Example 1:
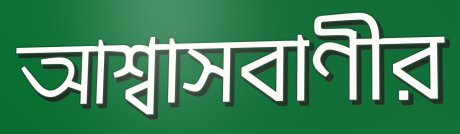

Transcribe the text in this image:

আশ্বাসবাণীর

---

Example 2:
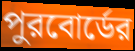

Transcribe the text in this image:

পুরবোর্ডের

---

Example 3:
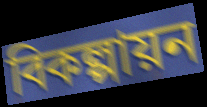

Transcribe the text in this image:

বিকল্পায়ন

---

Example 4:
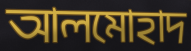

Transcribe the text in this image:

আলমোহাদ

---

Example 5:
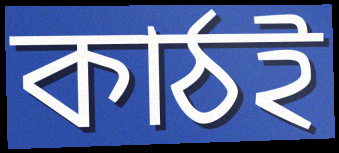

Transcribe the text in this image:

কাঠই